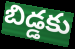
బిడ్డకు